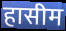
हासीम